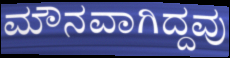
ಮೌನವಾಗಿದ್ದವು